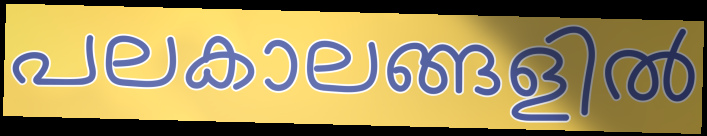
പലകാലങ്ങളിൽ